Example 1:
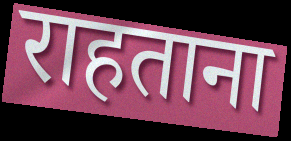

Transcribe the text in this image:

राहताना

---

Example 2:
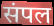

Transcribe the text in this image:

संपल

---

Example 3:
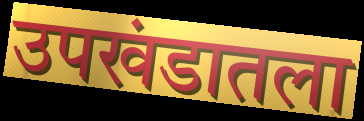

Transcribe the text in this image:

उपखंडातला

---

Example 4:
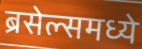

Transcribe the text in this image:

ब्रसेल्समध्ये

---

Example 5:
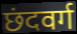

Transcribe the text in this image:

छंदवर्ग